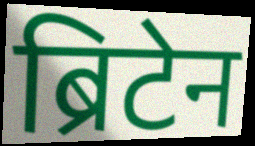
ब्रिटेन